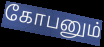
கோபனும்